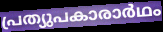
പ്രത്യുപകാരാർഥം